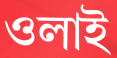
ওলাই